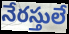
నేరస్తులే